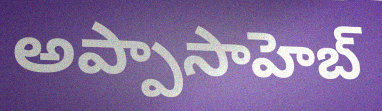
అప్పాసాహెబ్